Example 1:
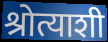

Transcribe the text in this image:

श्रोत्याशी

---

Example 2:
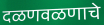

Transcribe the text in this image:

दळणवळणाचे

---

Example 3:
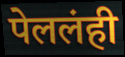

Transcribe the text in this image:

पेललंही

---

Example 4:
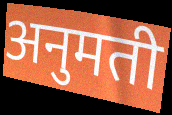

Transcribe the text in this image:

अनुमती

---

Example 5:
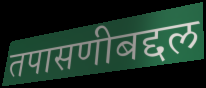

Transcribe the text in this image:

तपासणीबद्दल